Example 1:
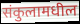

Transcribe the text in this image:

संकुलामधील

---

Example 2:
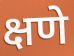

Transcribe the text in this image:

क्षणे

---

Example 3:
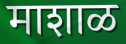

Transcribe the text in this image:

माशाळ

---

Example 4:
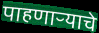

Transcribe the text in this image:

पाहणाऱ्याचे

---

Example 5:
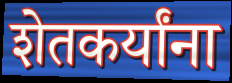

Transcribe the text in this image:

शेतकर्यांना